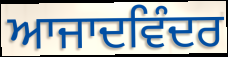
ਆਜਾਦਵਿੰਦਰ